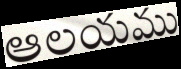
ఆలయము